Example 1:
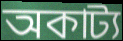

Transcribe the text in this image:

অকাট্য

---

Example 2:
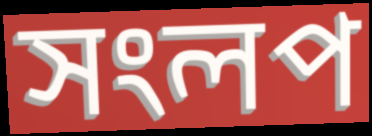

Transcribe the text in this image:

সংলপ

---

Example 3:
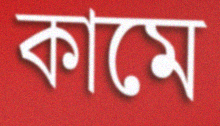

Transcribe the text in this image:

কামে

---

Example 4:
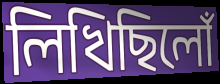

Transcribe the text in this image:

লিখিছিলোঁ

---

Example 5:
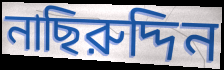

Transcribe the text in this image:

নাছিৰুদ্দিন